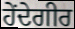
ਹੇਂਦੇਗੀਰ